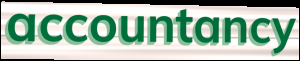
accountancy